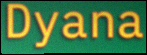
Dyana